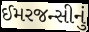
ઈમરજન્સીનું